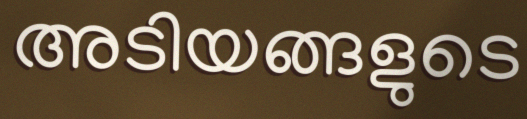
അടിയങ്ങളുടെ